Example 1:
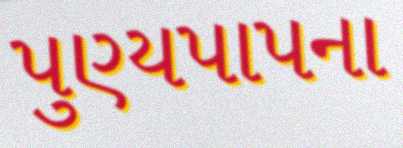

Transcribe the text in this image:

પુણ્યપાપના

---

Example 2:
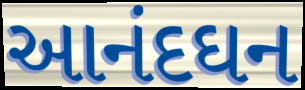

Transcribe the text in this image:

આનંદઘન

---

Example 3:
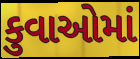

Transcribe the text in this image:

કુવાઓમાં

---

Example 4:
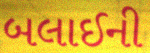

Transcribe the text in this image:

બલાઈની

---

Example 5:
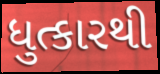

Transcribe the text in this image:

ધુત્કારથી